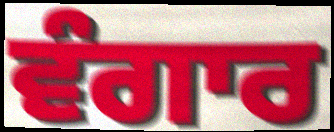
ਵੰਗਾਰ